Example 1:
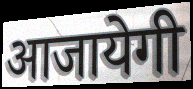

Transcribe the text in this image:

आजायेगी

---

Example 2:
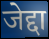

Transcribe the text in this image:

जेद्दा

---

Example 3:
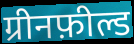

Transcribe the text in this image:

ग्रीनफ़ील्ड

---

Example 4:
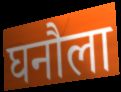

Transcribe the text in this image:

घनौला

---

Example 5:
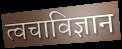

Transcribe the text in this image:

त्वचाविज्ञान